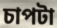
চাপটা